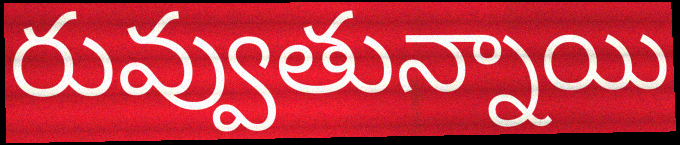
రువ్వుతున్నాయి